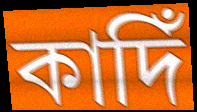
কাদিঁ